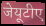
जेयूटीए